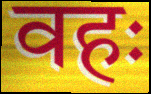
वहः